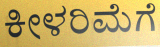
ಕೀಳರಿಮೆಗೆ